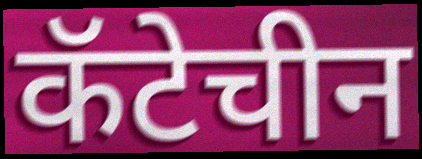
कॅटेचीन